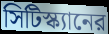
সিটিস্ক্যানের